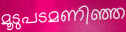
മൂടുപടമണിഞ്ഞ